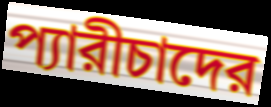
প্যারীচাদের